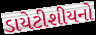
ડાયેટીશીયનો